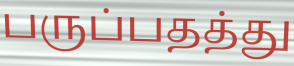
பருப்பதத்து